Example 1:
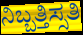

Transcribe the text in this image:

ನಿಬ್ಬತ್ತಿಸ್ಸತಿ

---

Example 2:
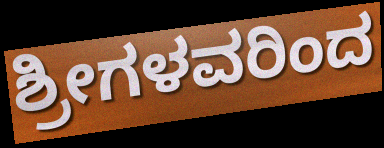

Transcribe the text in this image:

ಶ್ರೀಗಳವರಿಂದ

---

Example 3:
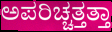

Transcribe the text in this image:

ಅಪರಿಚ್ಚತ್ತತ್ತಾ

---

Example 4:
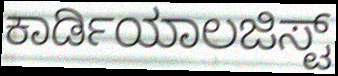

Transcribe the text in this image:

ಕಾರ್ಡಿಯಾಲಜಿಸ್ಟ್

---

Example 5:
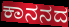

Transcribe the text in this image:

ಕಾನನದ